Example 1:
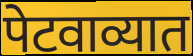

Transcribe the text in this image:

पेटवाव्यात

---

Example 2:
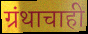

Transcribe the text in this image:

ग्रंथाचाही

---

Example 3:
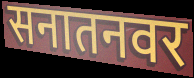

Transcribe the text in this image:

सनातनवर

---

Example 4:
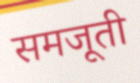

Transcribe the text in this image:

समजूती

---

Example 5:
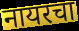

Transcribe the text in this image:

नायरचा